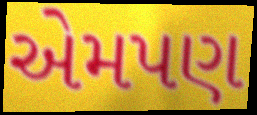
એમપણ